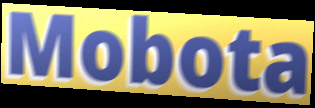
Mobota